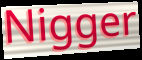
Nigger